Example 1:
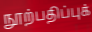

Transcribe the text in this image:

நூற்பதிப்புக்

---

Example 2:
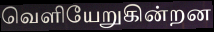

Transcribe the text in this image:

வெளியேறுகின்றன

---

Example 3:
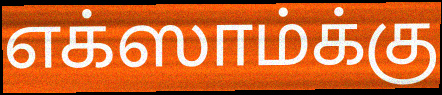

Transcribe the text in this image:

எக்ஸாம்க்கு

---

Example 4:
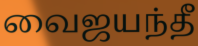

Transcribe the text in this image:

வைஜயந்தீ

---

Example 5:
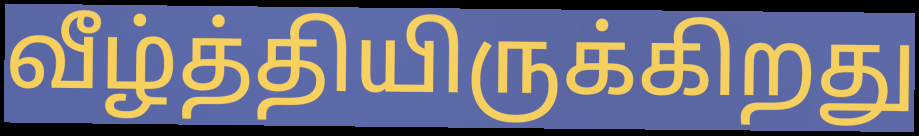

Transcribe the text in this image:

வீழ்த்தியிருக்கிறது